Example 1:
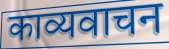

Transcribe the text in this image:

काव्यवाचन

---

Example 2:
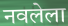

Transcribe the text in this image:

नवलेला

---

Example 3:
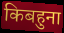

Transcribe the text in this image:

किबहुना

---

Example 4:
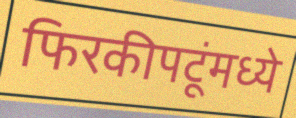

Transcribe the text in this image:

फिरकीपटूंमध्ये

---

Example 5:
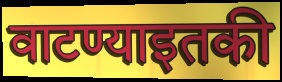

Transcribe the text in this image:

वाटण्याइतकी